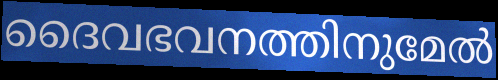
ദൈവഭവനത്തിനുമേൽ